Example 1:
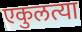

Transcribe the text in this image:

एकुलत्या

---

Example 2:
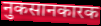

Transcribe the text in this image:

नुकसानकारक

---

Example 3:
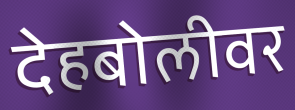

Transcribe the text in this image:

देहबोलीवर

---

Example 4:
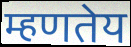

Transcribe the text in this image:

म्हणतेय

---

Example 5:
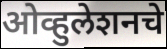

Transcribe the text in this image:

ओव्हुलेशनचे